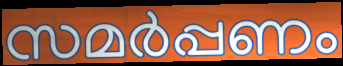
സമർപ്പണം